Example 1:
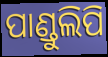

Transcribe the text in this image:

ପାଣ୍ଡୁଲିପି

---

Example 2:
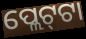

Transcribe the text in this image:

ପ୍ଲେଟ୍‍ଟା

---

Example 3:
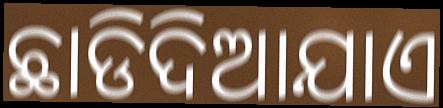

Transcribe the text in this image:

ଛାଡିଦିଆଯାଏ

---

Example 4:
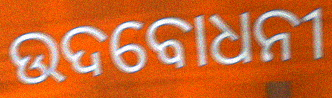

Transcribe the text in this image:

ଉଦବୋଧନୀ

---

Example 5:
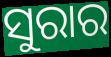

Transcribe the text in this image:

ସୁରାର